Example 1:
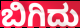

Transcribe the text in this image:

ಬಿಗಿದು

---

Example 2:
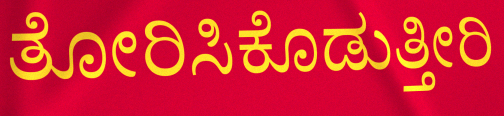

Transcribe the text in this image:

ತೋರಿಸಿಕೊಡುತ್ತೀರಿ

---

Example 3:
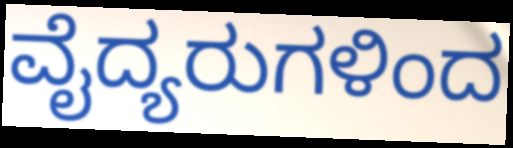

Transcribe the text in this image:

ವೈದ್ಯರುಗಳಿಂದ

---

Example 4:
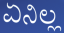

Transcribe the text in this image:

ಏನಿಲ್ಲ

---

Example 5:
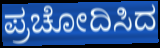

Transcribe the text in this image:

ಪ್ರಚೋದಿಸಿದ